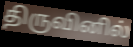
திருவினில்